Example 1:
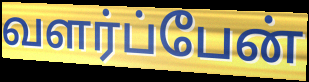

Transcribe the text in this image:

வளர்ப்பேன்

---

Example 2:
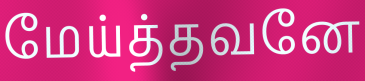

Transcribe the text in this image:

மேய்த்தவனே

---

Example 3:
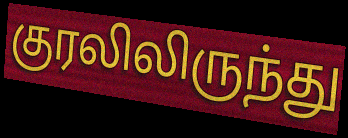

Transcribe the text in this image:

குரலிலிருந்து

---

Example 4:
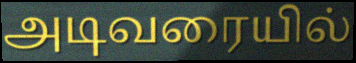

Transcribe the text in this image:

அடிவரையில்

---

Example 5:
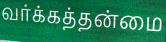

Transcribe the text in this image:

வர்க்கத்தன்மை